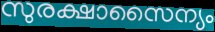
സുരക്ഷാസൈന്യം